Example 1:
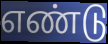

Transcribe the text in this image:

எண்டு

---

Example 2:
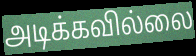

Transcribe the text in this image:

அடிக்கவில்லை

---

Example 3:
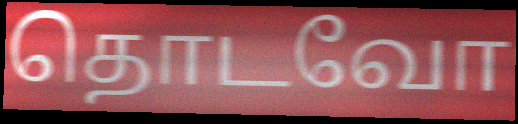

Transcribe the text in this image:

தொடவோ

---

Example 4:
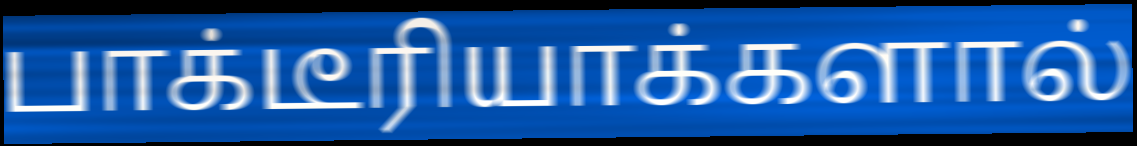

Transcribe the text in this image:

பாக்டீரியாக்களால்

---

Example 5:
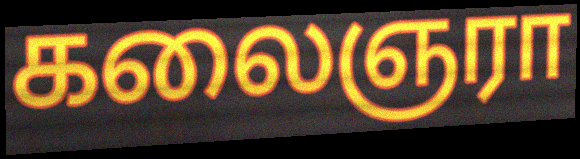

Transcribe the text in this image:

கலைஞரா